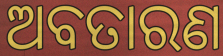
ଅବତାରଣ